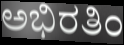
ಅಭಿರತಿಂ